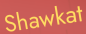
Shawkat